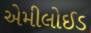
એમીલોઈડ